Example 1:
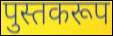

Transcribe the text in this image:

पुस्तकरूप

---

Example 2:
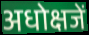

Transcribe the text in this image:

अधोक्षजें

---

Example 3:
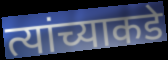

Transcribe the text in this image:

त्यांच्याकडे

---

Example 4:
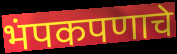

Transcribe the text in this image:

भंपकपणाचे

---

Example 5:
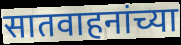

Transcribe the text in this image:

सातवाहनांच्या